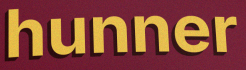
hunner